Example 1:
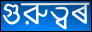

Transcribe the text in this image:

গুৰুত্বৰ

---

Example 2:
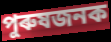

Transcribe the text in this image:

পুৰুষজনক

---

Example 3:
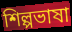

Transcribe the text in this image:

শিল্পভাষা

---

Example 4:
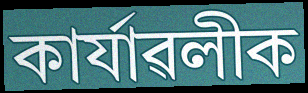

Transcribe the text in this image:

কাৰ্যাৱলীক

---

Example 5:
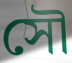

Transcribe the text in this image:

সৌ